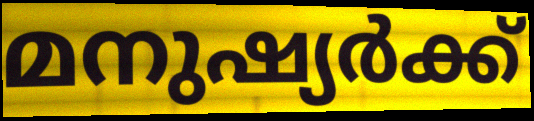
മനുഷ്യർക്ക്